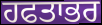
ਹਫਤਾਭਰ